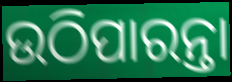
ଉଠିପାରନ୍ତା